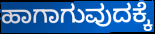
ಹಾಗಾಗುವುದಕ್ಕೆ